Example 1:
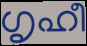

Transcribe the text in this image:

ഗൃഹീ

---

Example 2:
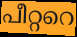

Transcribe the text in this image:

പീറ്ററെ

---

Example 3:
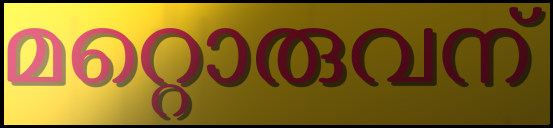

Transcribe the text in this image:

മറ്റൊരുവന്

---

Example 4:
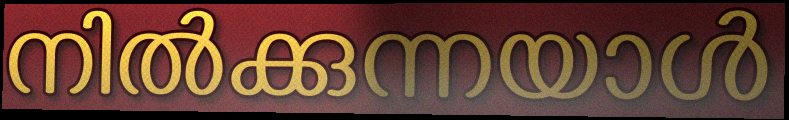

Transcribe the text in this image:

നിൽക്കുന്നയാൾ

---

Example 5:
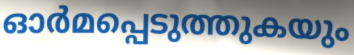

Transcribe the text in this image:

ഓർമപ്പെടുത്തുകയും